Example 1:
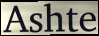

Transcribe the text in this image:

Ashte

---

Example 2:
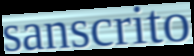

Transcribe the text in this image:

sanscrito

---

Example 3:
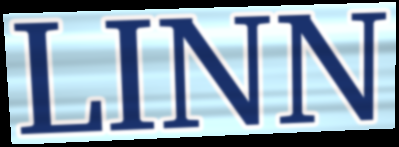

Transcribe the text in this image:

LINN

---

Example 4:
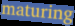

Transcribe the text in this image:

maturing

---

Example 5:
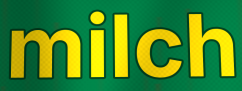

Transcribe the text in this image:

milch